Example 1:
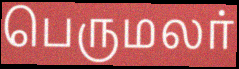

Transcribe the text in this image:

பெருமலர்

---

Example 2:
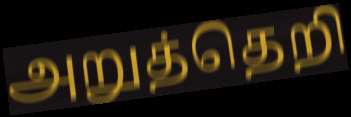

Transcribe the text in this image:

அறுத்தெறி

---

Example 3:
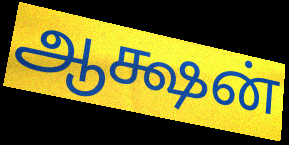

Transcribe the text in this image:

ஆக்ஷன்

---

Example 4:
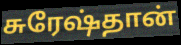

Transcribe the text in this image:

சுரேஷ்தான்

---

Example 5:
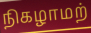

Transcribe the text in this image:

நிகழாமற்